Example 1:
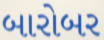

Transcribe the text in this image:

બારોબર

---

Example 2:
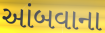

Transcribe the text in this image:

આંબવાના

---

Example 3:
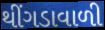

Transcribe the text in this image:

થીંગડાવાળી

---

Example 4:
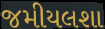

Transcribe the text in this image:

જમીયલશા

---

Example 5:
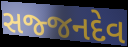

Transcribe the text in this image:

સજ્જનદેવ